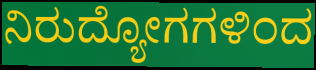
ನಿರುದ್ಯೋಗಗಳಿಂದ